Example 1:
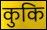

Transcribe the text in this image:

कुकि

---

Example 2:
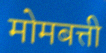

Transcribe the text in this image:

मोमबत्ती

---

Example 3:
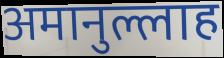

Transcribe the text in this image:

अमानुल्लाह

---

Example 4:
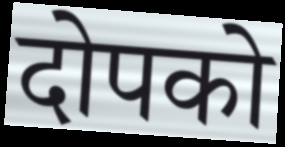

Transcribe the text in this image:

दोपको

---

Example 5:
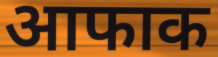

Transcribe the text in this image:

आफाक